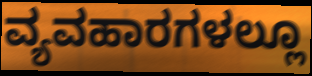
ವ್ಯವಹಾರಗಳಲ್ಲೂ